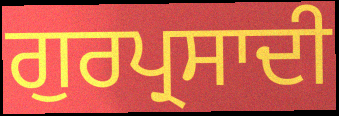
ਗੁਰਪ੍ਰਸਾਦੀ